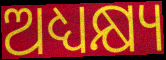
ଅଧ୍ୟକ୍ଷ୍ୟ